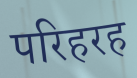
परिहरह